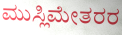
ಮುಸ್ಲಿಮೇತರರ